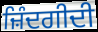
ਜ਼ਿੰਦਗੀਦੀ